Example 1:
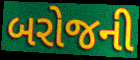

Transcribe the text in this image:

બરોજની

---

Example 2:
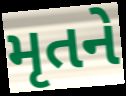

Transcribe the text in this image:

મૃતને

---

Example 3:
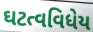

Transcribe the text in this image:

ઘટત્વવિધેય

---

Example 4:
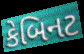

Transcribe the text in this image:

કેબિનટ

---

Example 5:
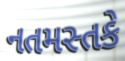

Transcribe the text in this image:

નતમસ્તકે